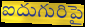
ఐదుగురిపై